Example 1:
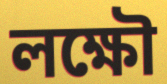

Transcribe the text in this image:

লক্ষৌ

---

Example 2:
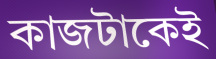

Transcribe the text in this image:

কাজটাকেই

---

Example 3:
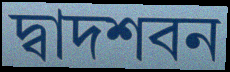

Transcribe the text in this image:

দ্বাদশবন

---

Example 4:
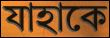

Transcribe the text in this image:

যাহাকে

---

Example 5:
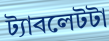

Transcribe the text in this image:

ট্যাবলেটটা